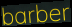
barber